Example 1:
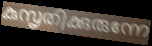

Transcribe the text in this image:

കുസൃതിക്കുരുന്നേ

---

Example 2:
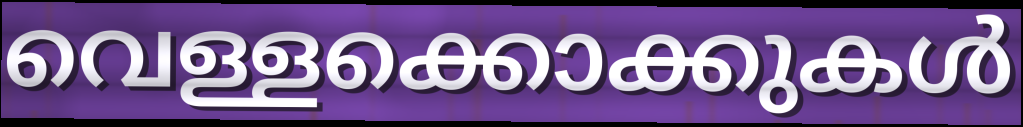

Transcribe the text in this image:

വെള്ളക്കൊക്കുകൾ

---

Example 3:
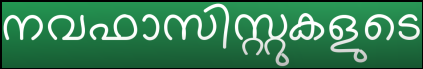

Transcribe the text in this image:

നവഫാസിസ്റ്റുകളുടെ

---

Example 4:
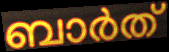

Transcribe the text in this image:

ബാർത്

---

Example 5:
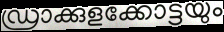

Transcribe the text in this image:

ഡ്രാക്കുളക്കോട്ടയും